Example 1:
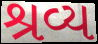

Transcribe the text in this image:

શ્રવ્ય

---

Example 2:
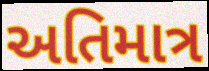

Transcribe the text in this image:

અતિમાત્ર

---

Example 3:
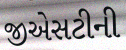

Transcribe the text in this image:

જીએસટીની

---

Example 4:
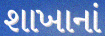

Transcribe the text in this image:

શાખાનાં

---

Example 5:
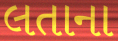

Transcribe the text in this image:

લતાના